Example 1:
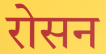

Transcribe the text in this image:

रोसन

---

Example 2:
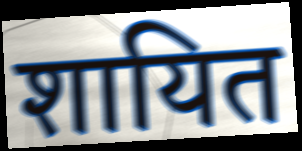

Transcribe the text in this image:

शायित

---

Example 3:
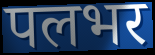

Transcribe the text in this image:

पलभर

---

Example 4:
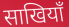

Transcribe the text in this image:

साखियाँ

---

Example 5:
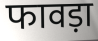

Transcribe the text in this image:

फावड़ा